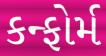
કન્ફોર્મ